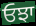
ਓਝਾ